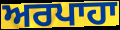
ਅਰਪਾਹਾ